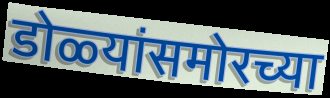
डोळ्यांसमोरच्या